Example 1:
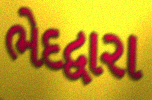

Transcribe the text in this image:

ભેદદ્વારા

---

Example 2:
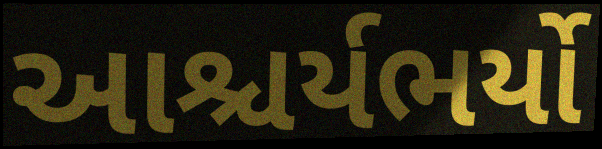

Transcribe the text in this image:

આશ્ચર્યભર્યો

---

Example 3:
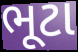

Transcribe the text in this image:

ભૂટા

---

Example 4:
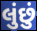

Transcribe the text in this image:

લુંછું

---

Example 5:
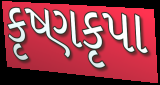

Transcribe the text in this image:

કૃષ્ણકૃપા